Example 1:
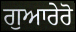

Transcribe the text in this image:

ਗੁਆਰੇਰੋ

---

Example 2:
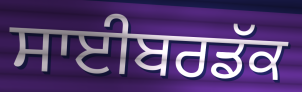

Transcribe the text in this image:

ਸਾਈਬਰਡੱਕ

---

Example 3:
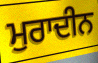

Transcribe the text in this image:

ਮੁਰਾਦੀਨ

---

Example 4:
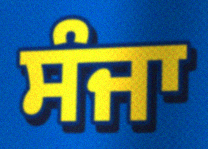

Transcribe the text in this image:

ਸੰਜਾ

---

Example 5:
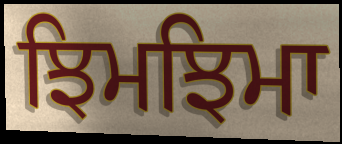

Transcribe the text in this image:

ਝਿਮਝਿਮਾ